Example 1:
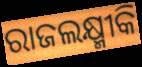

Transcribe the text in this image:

ରାଜଲକ୍ଷ୍ମୀକି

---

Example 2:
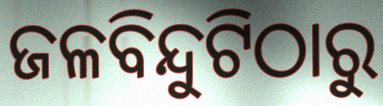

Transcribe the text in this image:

ଜଳବିନ୍ଦୁଟିଠାରୁ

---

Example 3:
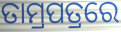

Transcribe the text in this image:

ତାମ୍ରପତ୍ରରେ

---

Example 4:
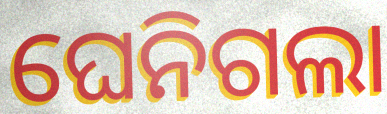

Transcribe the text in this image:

ଘେନିଗଲା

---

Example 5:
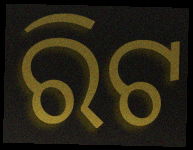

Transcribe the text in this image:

ରିଟ